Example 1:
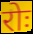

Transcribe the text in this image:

रोः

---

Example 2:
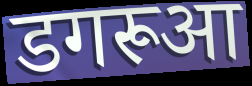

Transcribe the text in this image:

डगरूआ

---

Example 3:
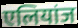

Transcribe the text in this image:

एलियांज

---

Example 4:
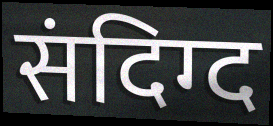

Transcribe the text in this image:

संदिग्द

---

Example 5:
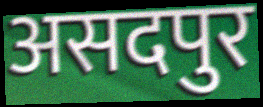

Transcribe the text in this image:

असदपुर